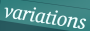
variations